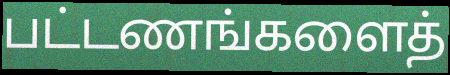
பட்டணங்களைத்